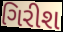
ગિરીશ